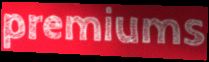
premiums